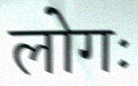
लोगः